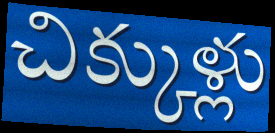
చిక్కుళ్లు